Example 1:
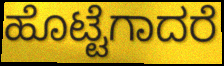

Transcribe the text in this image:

ಹೊಟ್ಟೆಗಾದರೆ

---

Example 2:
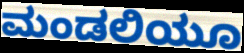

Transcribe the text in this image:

ಮಂಡಲಿಯೂ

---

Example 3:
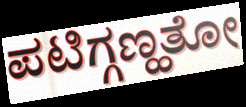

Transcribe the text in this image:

ಪಟಿಗ್ಗಣ್ಹತೋ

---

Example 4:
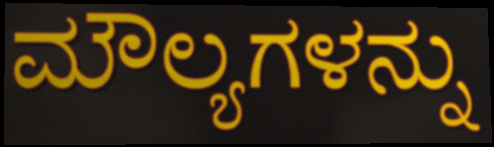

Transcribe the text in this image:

ಮೌಲ್ಯಗಳನ್ನು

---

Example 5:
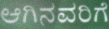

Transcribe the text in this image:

ಆಗಿನವರಿಗೆ